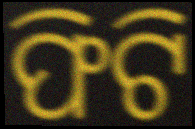
ଫିଟି